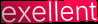
exellent